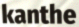
kanthe